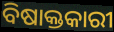
ବିଷାକ୍ତକାରୀ